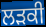
ਲੜਕੀ